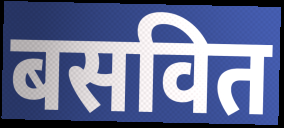
बसवित